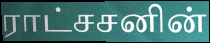
ராட்சசனின்